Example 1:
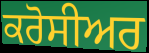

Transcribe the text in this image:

ਕਰੋਸੀਅਰ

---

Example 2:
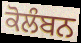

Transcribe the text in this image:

ਕੋਲੰਬਨ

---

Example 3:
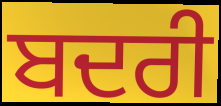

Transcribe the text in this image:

ਬਦਰੀ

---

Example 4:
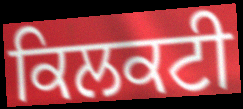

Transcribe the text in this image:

ਕਿਲਕਟੀ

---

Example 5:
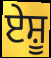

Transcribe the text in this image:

ਏਸ਼ੂ